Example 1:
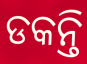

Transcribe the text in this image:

ଡକନ୍ତି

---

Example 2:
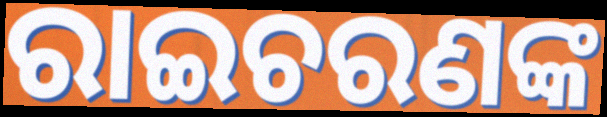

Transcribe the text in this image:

ରାଇଚରଣଙ୍କ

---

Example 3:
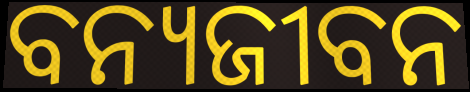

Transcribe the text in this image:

ବନ୍ୟଜୀବନ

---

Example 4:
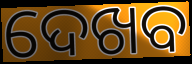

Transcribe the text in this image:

ଦେଖବ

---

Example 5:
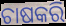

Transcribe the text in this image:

ଚାଷକରି